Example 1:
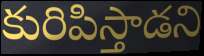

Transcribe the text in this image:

కురిపిస్తాడని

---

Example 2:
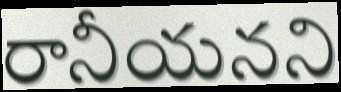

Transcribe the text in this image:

రానీయనని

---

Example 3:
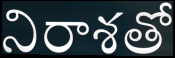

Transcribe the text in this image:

నిరాశతో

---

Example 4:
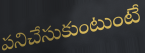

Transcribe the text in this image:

పనిచేసుకుంటుంటే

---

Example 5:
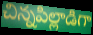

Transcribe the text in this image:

చిన్నపిల్లాడిగా